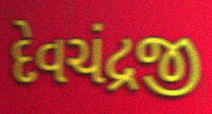
દેવચંદ્રજી